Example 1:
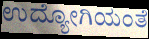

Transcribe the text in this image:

ಉದ್ಯೋಗಿಯಂತೆ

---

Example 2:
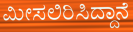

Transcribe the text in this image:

ಮೀಸಲಿರಿಸಿದ್ದಾನೆ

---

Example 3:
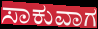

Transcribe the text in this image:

ಸಾಕುವಾಗ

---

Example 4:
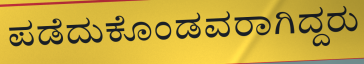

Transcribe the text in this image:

ಪಡೆದುಕೊಂಡವರಾಗಿದ್ದರು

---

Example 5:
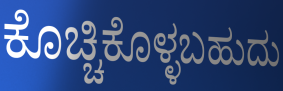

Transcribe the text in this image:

ಕೊಚ್ಚಿಕೊಳ್ಳಬಹುದು